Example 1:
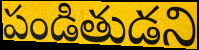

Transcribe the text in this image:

పండితుడని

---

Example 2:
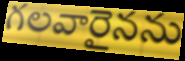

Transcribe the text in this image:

గలవారైనను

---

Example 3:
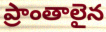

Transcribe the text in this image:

ప్రాంతాలైన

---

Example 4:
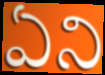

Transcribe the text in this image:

ఏని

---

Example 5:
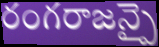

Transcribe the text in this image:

రంగరాజన్పై